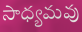
సాధ్యమవు